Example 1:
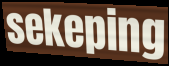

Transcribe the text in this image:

sekeping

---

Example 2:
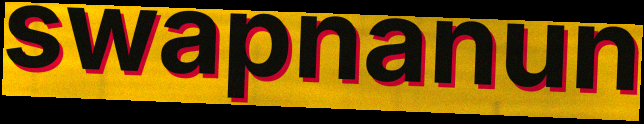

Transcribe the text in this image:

swapnanun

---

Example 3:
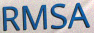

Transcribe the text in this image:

RMSA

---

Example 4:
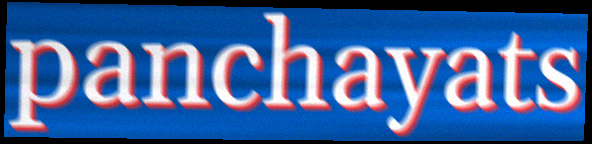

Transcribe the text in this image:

panchayats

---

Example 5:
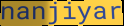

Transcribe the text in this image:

nanjiyar